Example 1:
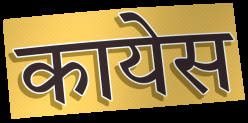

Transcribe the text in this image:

कायेस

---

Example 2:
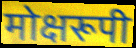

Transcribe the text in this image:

मोक्षरूपी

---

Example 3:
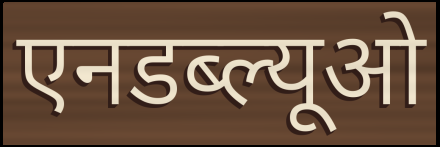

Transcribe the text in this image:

एनडब्ल्यूओ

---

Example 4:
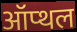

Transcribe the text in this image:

ऑप्थल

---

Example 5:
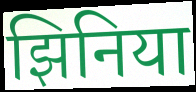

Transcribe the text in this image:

झिनिया